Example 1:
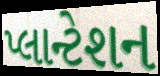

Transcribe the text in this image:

પ્લાન્ટેશન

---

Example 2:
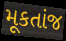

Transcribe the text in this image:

મૂકતાંજ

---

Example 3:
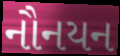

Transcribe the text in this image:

નૌનયન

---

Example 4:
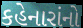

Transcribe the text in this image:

કહેનારાંનો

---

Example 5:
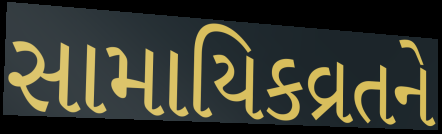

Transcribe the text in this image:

સામાયિકવ્રતને